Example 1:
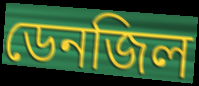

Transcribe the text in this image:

ডেনজিল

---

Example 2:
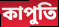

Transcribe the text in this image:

কাপুতি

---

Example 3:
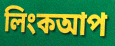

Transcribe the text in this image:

লিংকআপ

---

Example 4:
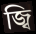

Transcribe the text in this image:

জ্বি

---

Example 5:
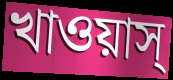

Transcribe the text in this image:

খাওয়াস্